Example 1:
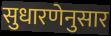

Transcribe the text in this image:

सुधारणेनुसार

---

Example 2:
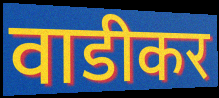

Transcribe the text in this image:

वाडीकर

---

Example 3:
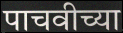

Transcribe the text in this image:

पाचवीच्या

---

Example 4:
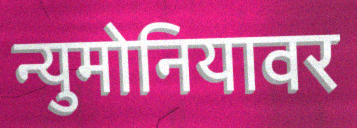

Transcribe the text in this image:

न्युमोनियावर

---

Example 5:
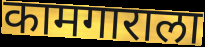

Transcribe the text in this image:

कामगाराला